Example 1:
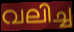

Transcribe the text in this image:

വലിച്ച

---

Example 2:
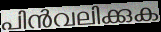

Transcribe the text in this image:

പിൻവലിക്കുക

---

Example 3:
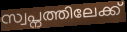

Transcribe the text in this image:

സ്വപ്നത്തിലേക്ക്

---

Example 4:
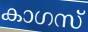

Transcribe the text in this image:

കാഗസ്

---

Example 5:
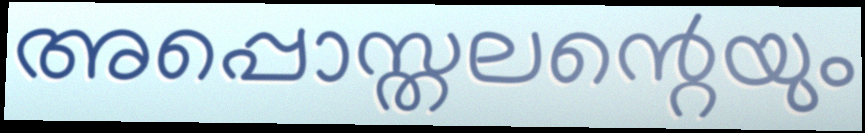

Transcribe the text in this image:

അപ്പൊസ്തലന്റെയും